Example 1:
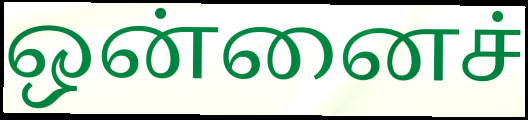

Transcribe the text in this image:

ஒன்னைச்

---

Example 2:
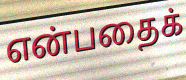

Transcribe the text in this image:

என்பதைக்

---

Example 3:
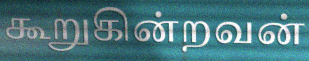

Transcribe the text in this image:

கூறுகின்றவன்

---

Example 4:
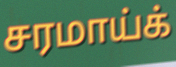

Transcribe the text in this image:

சரமாய்க்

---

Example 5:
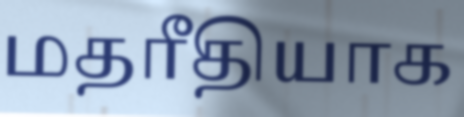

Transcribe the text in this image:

மதரீதியாக